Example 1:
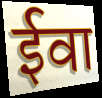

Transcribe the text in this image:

ईवा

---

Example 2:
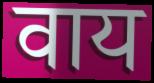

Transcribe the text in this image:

वाय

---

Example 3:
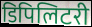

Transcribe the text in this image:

डिपिलिटरी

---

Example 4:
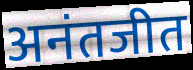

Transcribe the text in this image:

अनंतजीत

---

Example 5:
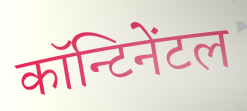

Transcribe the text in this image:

कॉन्टिनेंटल